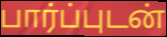
பார்ப்புடன்